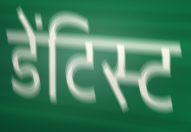
डेंटिस्ट